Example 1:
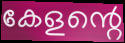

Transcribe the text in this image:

കേളന്റെ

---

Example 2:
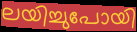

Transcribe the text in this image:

ലയിച്ചുപോയി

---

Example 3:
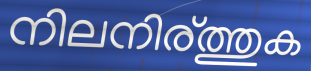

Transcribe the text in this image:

നിലനിര്ത്തുക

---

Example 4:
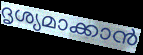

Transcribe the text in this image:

ദൃശ്യമാക്കാൻ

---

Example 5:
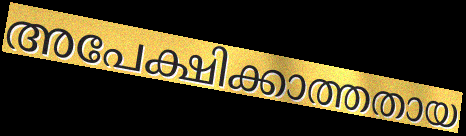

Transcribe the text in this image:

അപേക്ഷിക്കാത്തതായ